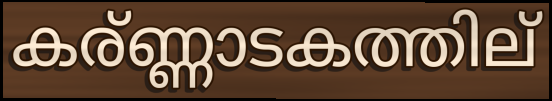
കര്ണ്ണാടകത്തില്